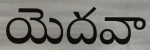
యెదవా